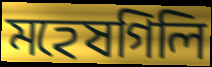
মহেষগিলি